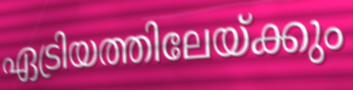
ഏട്രിയത്തിലേയ്ക്കും